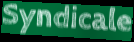
Syndicale